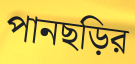
পানছড়ির